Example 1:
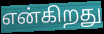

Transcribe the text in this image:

என்கிறது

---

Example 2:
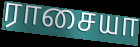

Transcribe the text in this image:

ராசையா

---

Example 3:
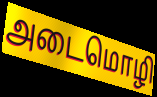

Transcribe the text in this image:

அடைமொழி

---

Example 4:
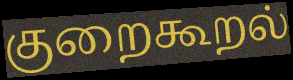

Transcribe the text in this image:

குறைகூறல்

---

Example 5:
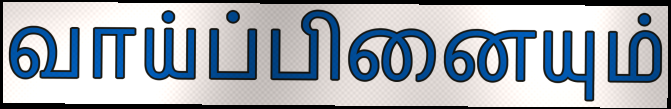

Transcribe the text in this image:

வாய்ப்பினையும்